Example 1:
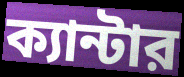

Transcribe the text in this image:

ক্যান্টার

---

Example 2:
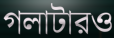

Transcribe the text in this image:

গলাটারও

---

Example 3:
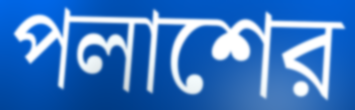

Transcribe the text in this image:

পলাশের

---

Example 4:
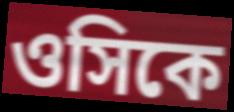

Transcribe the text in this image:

ওসিকে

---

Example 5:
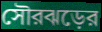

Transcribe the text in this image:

সৌরঝড়ের